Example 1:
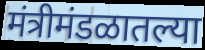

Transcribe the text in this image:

मंत्रीमंडळातल्या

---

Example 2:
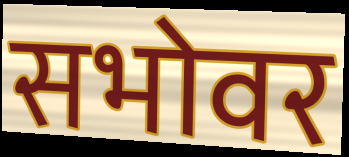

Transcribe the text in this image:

सभोवर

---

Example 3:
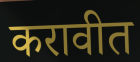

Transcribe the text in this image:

करावीत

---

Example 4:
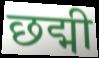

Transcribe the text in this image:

छद्मी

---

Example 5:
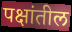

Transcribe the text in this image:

पक्षांतील